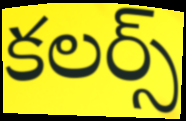
కలర్స్